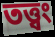
তত্ত্বং